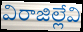
విరాజిల్లేవి